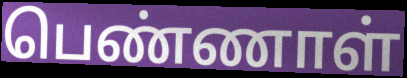
பெண்ணாள்